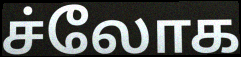
ச்லோக